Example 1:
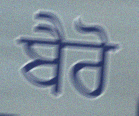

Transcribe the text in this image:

ਬੈਰੋ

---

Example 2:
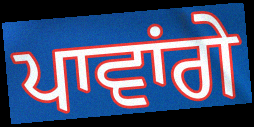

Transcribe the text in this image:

ਪਾਵਾਂਗੇ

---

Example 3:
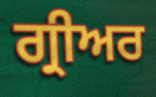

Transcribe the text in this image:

ਗ੍ਰੀਅਰ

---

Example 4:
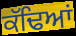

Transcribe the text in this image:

ਕੱਢਿਆਂ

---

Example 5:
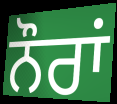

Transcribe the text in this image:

ਨੌਰਾਂ